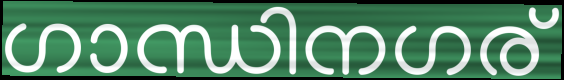
ഗാന്ധിനഗര്